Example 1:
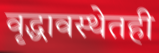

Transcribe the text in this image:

वृद्धावस्थेतही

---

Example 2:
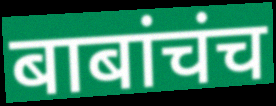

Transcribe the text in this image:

बाबांचंच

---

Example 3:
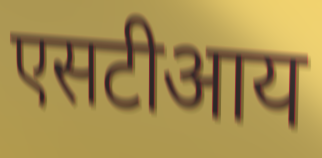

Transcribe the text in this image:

एसटीआय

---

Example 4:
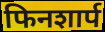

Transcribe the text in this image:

फिनशार्प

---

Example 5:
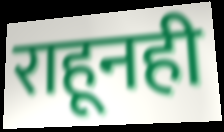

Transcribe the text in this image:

राहूनही